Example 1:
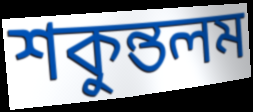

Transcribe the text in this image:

শকুন্তলম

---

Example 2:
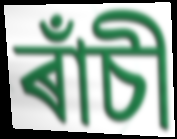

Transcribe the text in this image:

ৰাঁচী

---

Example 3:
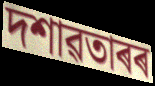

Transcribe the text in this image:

দশাৱতাৰৰ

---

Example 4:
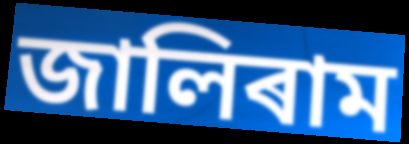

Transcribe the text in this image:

জালিৰাম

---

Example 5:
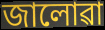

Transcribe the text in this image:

জালোৱা